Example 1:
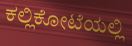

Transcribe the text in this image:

ಕಲ್ಲಿಕೋಟೆಯಲ್ಲಿ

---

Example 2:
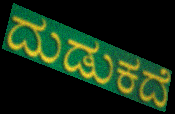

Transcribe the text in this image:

ದುಡುಕದೆ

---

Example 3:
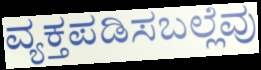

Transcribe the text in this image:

ವ್ಯಕ್ತಪಡಿಸಬಲ್ಲೆವು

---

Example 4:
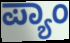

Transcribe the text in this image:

ಪ್ಯಾಂ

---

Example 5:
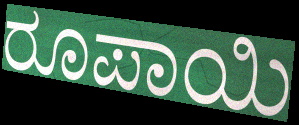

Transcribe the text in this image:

ರೂಪಾಯಿ